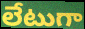
లేటుగా